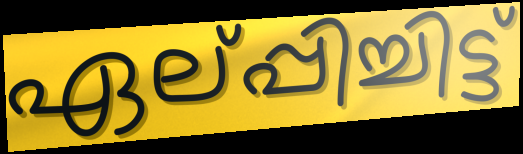
ഏല്പ്പിച്ചിട്ട്